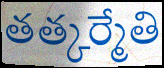
తత్కర్మేతి